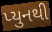
પ્યુનથી